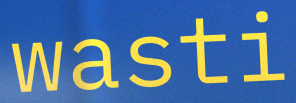
wasti